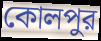
কোলপুর